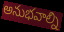
అనుభవాల్ని